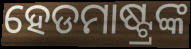
ହେଡମାଷ୍ଟ୍ରଙ୍କ